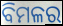
ବିମଳର